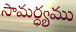
సామర్ధ్యము